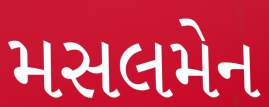
મસલમેન